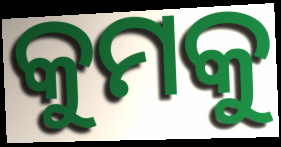
କୁମକୁ